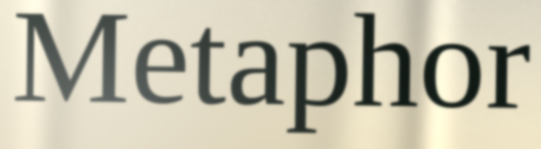
Metaphor